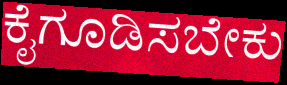
ಕೈಗೂಡಿಸಬೇಕು